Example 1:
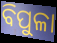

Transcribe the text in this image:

ବିପୁଳା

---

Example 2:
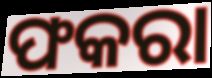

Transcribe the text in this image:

ଫକରା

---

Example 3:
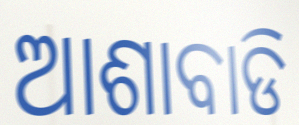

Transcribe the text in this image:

ଆଶାବାଡି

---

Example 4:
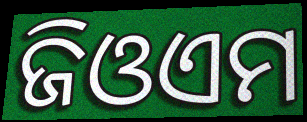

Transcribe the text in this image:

ଜିଓଏମ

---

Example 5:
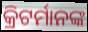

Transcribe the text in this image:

କ୍ରିଟର୍ମାନଙ୍କ